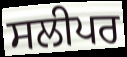
ਸਲੀਪਰ